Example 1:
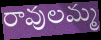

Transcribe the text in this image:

రావులమ్మ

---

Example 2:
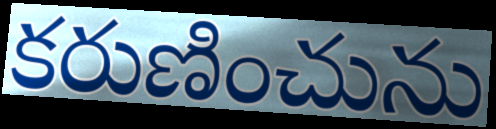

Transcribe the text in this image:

కరుణించును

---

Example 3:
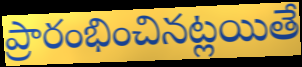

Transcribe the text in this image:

ప్రారంభించినట్లయితే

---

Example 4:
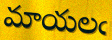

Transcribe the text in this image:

మాయలఁ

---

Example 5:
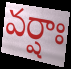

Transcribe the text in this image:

వర్షాః